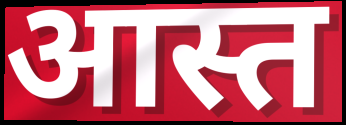
आस्त